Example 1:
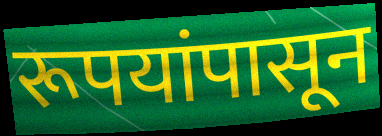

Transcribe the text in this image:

रूपयांपासून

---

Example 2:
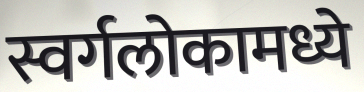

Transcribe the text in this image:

स्वर्गलोकामध्ये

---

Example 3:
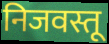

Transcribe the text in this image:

निजवस्तू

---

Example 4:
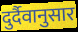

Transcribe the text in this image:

दुर्दैवानुसार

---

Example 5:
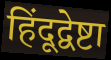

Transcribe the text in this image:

हिंदूद्वेष्टा